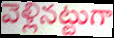
వెళ్లినట్టుగా